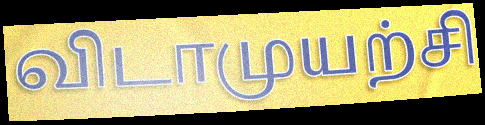
விடாமுயற்சி